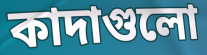
কাদাগুলো